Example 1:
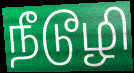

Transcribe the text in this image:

நீடூழி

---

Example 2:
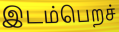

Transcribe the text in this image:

இடம்பெறச்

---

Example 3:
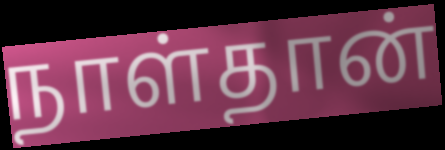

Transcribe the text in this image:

நாள்தான்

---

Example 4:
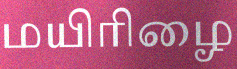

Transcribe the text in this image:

மயிரிழை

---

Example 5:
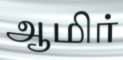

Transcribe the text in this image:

ஆமிர்